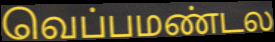
வெப்பமண்டல